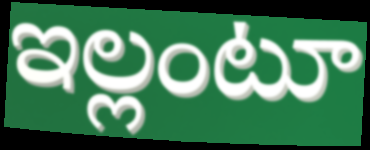
ఇల్లంటూ